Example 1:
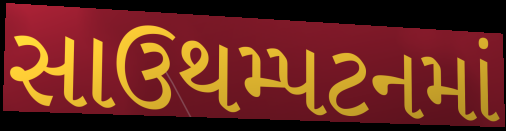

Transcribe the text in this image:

સાઉથમ્પટનમાં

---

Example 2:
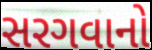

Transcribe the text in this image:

સરગવાનો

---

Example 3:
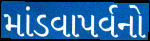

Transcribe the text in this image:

માંડવાપર્વનો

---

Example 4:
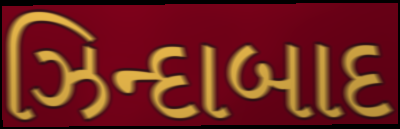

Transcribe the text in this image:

ઝિન્દાબાદ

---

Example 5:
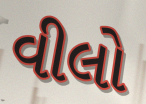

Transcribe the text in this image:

વીલો